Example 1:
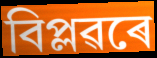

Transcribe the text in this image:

বিপ্লৱৰে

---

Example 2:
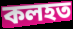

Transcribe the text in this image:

কলহত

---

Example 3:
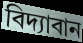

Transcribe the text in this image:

বিদ্যাবান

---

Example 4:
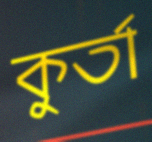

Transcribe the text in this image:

কুৰ্তা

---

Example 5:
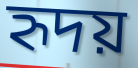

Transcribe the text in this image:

হৃদয়